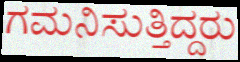
ಗಮನಿಸುತ್ತಿದ್ದರು